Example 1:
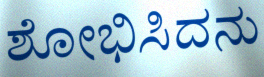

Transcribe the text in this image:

ಶೋಭಿಸಿದನು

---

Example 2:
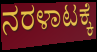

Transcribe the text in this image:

ನರಳಾಟಕ್ಕೆ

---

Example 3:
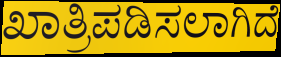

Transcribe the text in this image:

ಖಾತ್ರಿಪಡಿಸಲಾಗಿದೆ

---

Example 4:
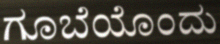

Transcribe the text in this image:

ಗೂಬೆಯೊಂದು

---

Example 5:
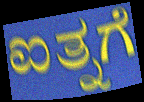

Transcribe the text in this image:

ಐತ್ನಗೆ